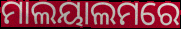
ମାଲୟାଲମରେ